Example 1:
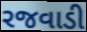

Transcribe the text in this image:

રજવાડી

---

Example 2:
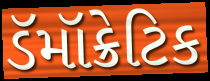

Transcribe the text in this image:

ડૅમૉક્રેટિક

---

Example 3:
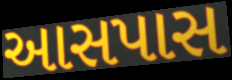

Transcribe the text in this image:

આસપાસ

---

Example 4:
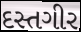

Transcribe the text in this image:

દસ્તગીર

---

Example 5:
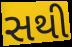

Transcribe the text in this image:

સથી